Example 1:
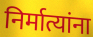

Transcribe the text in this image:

निर्मात्यांना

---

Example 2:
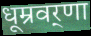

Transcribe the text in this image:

धूम्रवर्णा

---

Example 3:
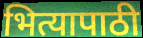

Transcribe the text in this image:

भित्यापाठी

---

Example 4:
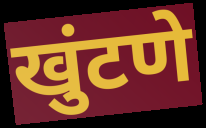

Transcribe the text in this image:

खुंटणे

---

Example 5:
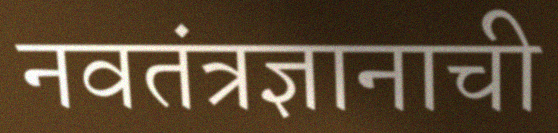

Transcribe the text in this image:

नवतंत्रज्ञानाची